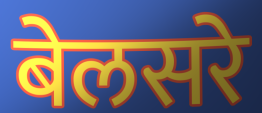
बेलसरे